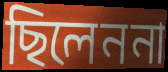
ছিলেননা